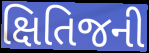
ક્ષિતિજની